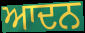
ਆਦਨ